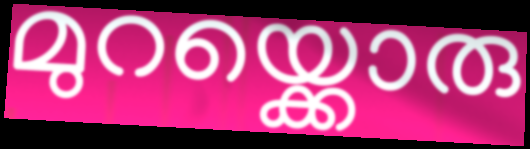
മുറയ്ക്കൊരു